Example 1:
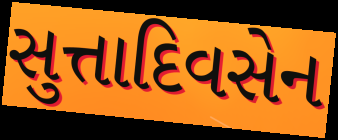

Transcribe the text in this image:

સુત્તાદિવસેન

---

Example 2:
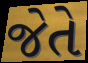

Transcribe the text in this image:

જેતે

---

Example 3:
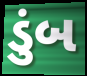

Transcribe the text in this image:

ડુંબ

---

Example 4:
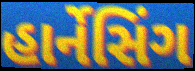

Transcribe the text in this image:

હાર્નેસિંગ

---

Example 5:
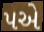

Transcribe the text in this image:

પએ